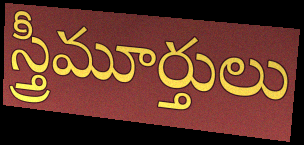
స్త్రీమూర్తులు